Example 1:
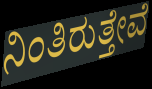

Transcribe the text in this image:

ನಿಂತಿರುತ್ತೇವೆ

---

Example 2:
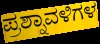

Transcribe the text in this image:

ಪ್ರಶ್ನಾವಳಿಗಳ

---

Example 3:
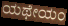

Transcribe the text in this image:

ಯಥೇಯಂ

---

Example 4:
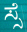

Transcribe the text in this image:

ಸ್ಸೆ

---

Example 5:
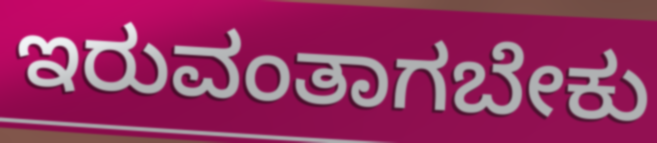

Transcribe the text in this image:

ಇರುವಂತಾಗಬೇಕು